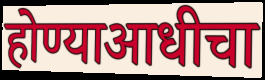
होण्याआधीचा